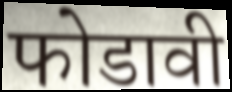
फोडावी